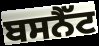
ਬਸਨੈੱਟ